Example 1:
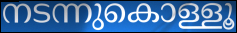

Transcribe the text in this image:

നടന്നുകൊള്ളൂ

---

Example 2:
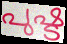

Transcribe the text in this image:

പുഷ്ട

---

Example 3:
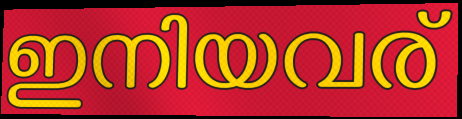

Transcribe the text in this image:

ഇനിയവര്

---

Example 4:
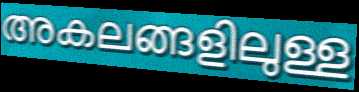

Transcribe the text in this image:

അകലങ്ങളിലുള്ള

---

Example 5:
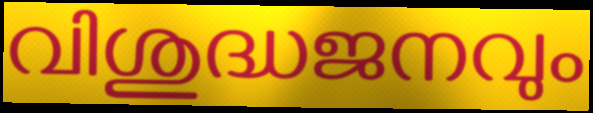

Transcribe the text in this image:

വിശുദ്ധജനവും